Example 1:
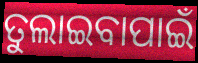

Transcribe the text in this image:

ତୁଲାଇବାପାଇଁ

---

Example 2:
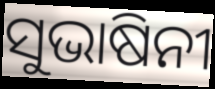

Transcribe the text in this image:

ସୁଭାଷିନୀ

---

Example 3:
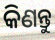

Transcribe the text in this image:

କିଣନ୍ତୁ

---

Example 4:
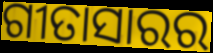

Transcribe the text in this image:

ଗୀତାସାରର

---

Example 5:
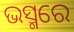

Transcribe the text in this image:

ଭସ୍ମରେ